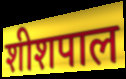
शीशपाल